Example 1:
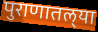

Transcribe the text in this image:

पुराणातल्या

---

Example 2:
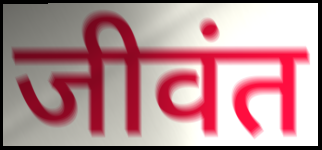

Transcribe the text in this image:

जीवंत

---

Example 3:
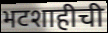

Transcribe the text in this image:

भटशाहीची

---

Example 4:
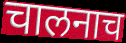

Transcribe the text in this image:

चालनाच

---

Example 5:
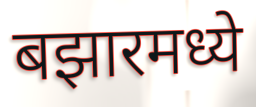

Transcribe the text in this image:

बझारमध्ये